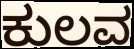
ಕುಲವ